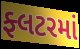
ફ્લટરમાં